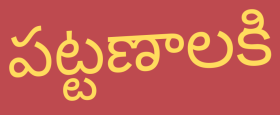
పట్టణాలకి